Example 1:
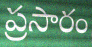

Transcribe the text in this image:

ప్రసారం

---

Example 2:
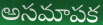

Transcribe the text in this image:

అసమాపక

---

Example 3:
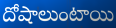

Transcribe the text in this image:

దోషాలుంటాయి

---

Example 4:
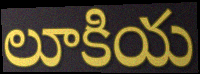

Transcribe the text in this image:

లూకియ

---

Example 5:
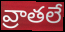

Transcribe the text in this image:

వ్రాతలే